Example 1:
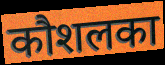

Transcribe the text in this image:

कौशलका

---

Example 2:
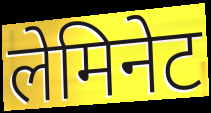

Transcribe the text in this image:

लेमिनेट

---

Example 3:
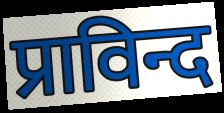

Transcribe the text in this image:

प्राविन्द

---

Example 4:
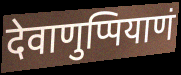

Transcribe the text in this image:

देवाणुप्पियाणं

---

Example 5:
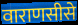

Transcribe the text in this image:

वाराणसीसे